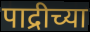
पाद्रीच्या